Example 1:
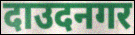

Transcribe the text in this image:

दाउदनगर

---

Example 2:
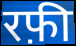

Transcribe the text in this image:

रफ़ी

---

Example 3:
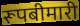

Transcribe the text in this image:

रूपबीमारी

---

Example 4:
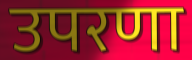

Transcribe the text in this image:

उपरणा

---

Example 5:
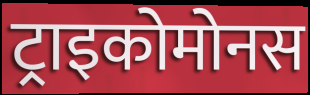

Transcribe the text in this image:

ट्राइकोमोनस